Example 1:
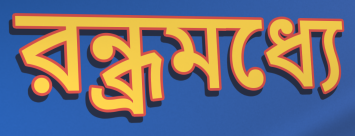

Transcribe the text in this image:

রন্ধ্রমধ্যে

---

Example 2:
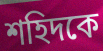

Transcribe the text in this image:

শহিদকে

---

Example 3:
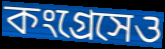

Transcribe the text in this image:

কংগ্রেসেও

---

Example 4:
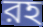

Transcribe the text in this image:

রহ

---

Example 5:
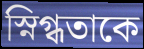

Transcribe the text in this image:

স্নিগ্ধতাকে